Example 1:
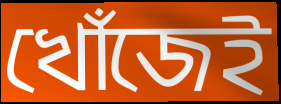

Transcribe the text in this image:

খোঁজেই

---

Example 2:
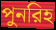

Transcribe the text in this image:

পুনরিহ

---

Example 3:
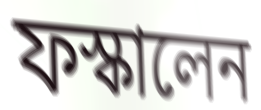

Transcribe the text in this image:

ফস্কালেন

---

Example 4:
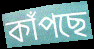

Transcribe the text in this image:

কাঁপছে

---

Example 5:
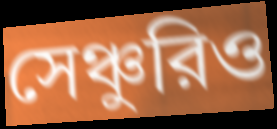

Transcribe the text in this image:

সেঞ্চুরিও